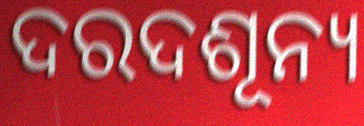
ଦରଦଶୂନ୍ୟ